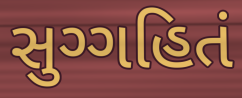
સુગ્ગહિતં